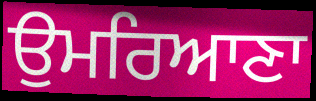
ਉਮਰਿਆਣਾ